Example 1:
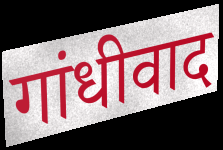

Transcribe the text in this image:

गांधीवाद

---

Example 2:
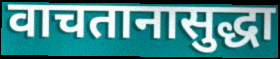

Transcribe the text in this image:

वाचतानासुद्धा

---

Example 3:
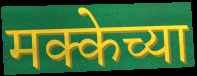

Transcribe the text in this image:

मक्केच्या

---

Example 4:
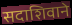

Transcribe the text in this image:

सदाशिवाने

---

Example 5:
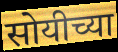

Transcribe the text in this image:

सोयीच्या